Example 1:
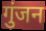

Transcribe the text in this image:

गुंजन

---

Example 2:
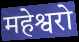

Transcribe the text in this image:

महेश्वरो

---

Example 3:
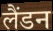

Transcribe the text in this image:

लैंडन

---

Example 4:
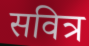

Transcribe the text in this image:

सवित्र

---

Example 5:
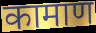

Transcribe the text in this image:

कामाण